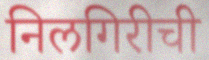
निलगिरीची